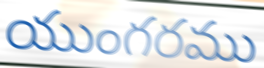
యుంగరము